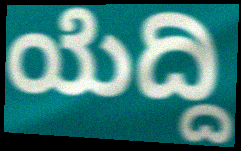
ಯೆದ್ದಿ